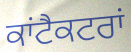
ਕਾਂਟੈਕਟਰਾਂ